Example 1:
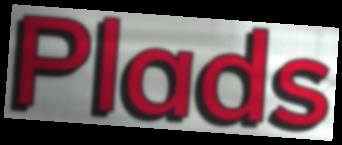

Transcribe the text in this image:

Plads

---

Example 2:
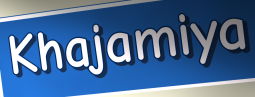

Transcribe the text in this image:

Khajamiya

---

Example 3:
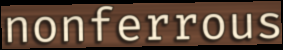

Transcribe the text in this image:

nonferrous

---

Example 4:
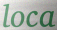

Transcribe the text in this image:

loca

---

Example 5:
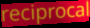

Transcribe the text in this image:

reciprocal